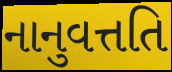
નાનુવત્તતિ